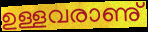
ഉള്ളവരാണു്